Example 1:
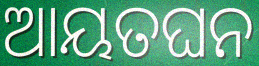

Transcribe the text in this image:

ଆୟତଘନ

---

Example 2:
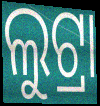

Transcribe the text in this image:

ଲୁଟ୍ରା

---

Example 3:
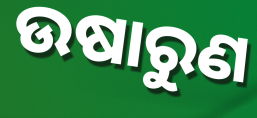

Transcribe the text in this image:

ଉଷାରୁଣ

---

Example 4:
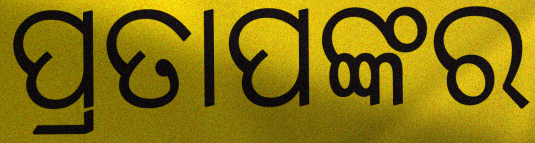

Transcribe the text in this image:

ପ୍ରତାପଙ୍କର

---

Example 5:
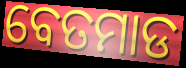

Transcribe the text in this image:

ବେତମାଡ